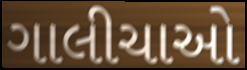
ગાલીચાઓ